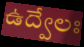
ఉద్వేలః